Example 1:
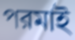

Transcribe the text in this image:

পরমাই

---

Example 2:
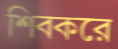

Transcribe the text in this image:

শিবকরে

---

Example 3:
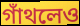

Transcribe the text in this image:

গাঁথলেও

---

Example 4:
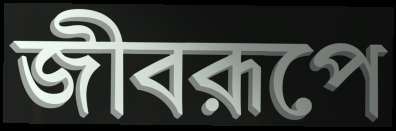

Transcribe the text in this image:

জীবরূপে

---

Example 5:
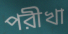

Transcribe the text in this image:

পরীখা